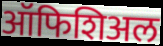
ऑफिशिअल